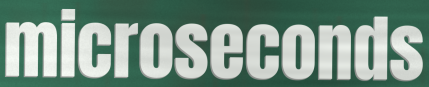
microseconds